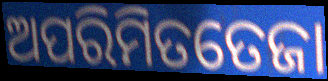
ଅପରିମିତତେଜା